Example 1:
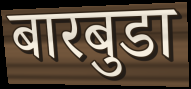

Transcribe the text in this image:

बारबुडा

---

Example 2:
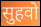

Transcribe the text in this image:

सुहवो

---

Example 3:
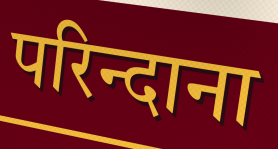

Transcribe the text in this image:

परिन्दाना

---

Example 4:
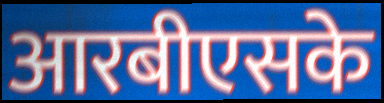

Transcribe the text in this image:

आरबीएसके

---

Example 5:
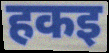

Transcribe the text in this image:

हकइ